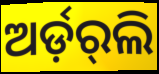
ଅର୍ଡ଼ର୍‌ଲି